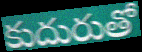
కుదురుతో